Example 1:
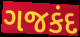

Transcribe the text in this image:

ગજકંદ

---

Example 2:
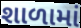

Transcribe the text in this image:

શાળામાં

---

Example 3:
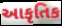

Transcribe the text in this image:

આકૃતિક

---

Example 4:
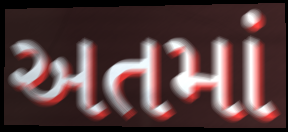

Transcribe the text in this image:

અતમાં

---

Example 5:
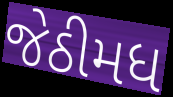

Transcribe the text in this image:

જેઠીમધ